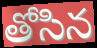
తోసిన